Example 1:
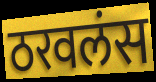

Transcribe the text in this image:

ठरवलंस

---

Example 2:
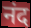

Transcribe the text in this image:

नंद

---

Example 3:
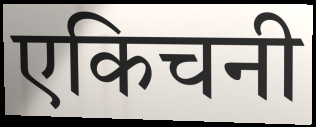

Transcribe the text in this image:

एकिचनी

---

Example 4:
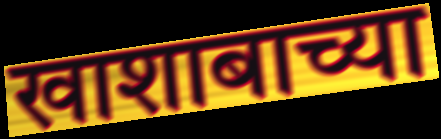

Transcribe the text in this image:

खाशाबाच्या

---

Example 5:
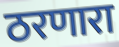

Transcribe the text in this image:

ठरणारा